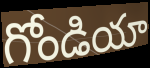
గోండియా